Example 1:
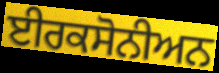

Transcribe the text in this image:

ਈਰਕਸੋਨੀਅਨ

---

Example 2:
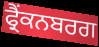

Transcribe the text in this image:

ਫ੍ਰੈਂਕਨਬਰਗ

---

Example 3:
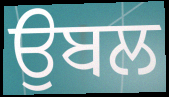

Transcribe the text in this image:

ਉਬਲ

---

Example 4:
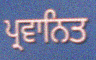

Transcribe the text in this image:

ਪ੍ਰਵਾਨਿਤ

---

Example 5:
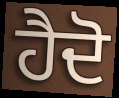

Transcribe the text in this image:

ਹੈਦੋ